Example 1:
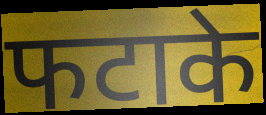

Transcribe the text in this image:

फटाके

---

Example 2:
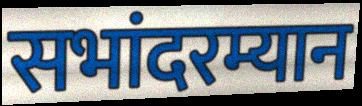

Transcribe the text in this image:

सभांदरम्यान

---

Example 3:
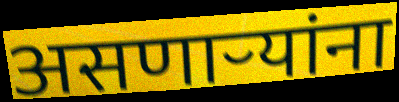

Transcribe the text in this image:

असणाऱ्यांना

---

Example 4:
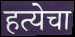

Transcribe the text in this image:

हत्येचा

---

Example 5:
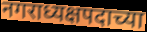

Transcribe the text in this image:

नगराध्यक्षपदाच्या